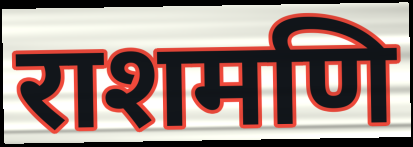
राशमणि